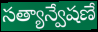
సత్యాన్వేషణే